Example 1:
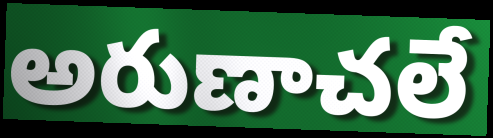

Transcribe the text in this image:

అరుణాచలే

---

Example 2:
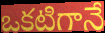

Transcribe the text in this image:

ఒకటిగానే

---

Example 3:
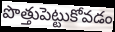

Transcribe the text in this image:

పొత్తుపెట్టుకోవడం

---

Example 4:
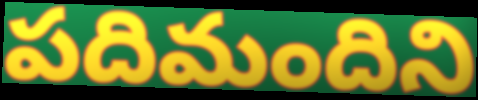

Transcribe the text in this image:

పదిమందిని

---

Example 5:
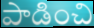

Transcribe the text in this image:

పాడించి